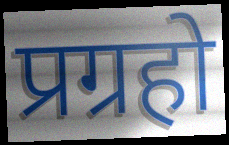
प्रग्रहो